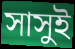
সাসুই